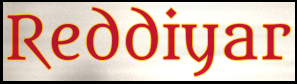
Reddiyar